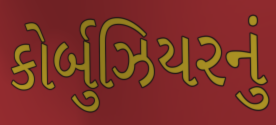
કોર્બુઝિયરનું